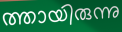
ത്തായിരുന്നു